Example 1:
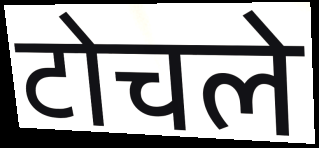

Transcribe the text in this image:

टोचले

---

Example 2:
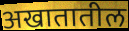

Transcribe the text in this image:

अखातातील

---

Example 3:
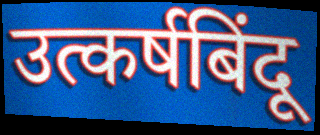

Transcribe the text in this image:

उत्कर्षबिंदू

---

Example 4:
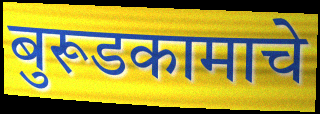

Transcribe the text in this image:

बुरूडकामाचे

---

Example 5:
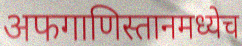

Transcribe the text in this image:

अफगाणिस्तानमध्येच